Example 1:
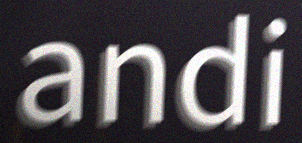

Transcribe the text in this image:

andi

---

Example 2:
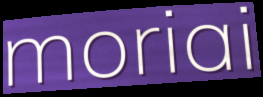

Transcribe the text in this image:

moriai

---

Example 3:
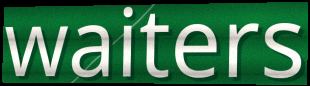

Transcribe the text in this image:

waiters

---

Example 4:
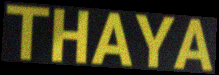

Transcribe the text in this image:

THAYA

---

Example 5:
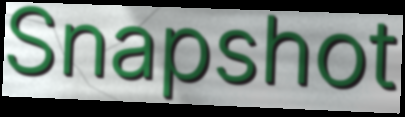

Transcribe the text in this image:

Snapshot